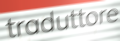
traduttore